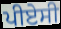
ਪੀਏਸੀ